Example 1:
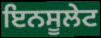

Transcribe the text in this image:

ਇਨਸੂਲੇਟ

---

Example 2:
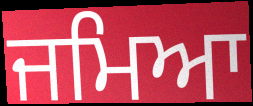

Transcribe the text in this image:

ਜਮਿਆ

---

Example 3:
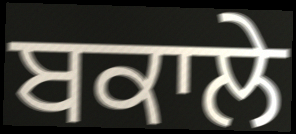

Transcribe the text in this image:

ਬਕਾਲੇ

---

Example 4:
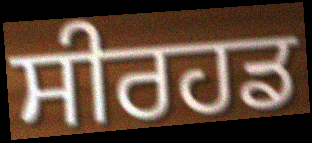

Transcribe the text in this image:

ਸੀਰਹਡ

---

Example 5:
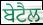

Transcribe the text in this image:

ਬੇਟੈਲ